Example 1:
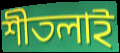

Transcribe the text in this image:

শীতলাই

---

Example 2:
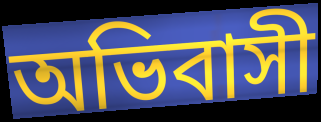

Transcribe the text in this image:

অভিবাসী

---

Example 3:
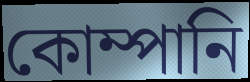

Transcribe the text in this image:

কোম্পানি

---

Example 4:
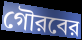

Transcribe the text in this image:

গৌরবের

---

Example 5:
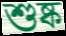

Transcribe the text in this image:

শুষ্ক